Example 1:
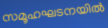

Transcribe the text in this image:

സമൂഹഘടനയിൽ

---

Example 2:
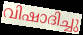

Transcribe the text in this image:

വിഷാദിച്ചു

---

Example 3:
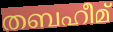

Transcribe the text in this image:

തബഹീമ്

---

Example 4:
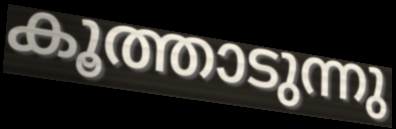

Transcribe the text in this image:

കൂത്താടുന്നു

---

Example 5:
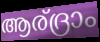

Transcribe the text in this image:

ആര്ദ്രാം